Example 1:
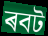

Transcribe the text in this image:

ৰবট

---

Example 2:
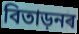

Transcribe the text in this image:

বিতাড়নৰ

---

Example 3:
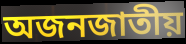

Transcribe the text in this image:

অজনজাতীয়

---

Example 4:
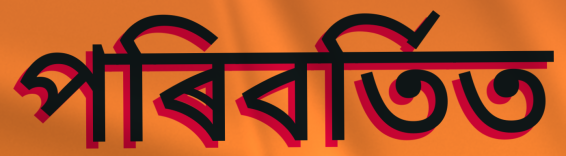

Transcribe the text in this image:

পৰিবৰ্তিত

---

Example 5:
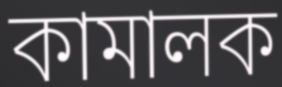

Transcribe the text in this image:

কামালক